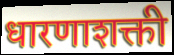
धारणाशक्ती